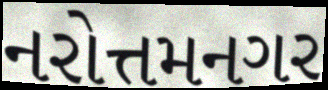
નરોત્તમનગર